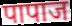
पापाज